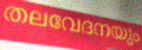
തലവേദനയും